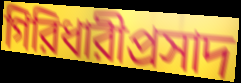
গিরিধারীপ্রসাদ